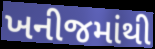
ખનીજમાંથી